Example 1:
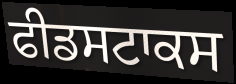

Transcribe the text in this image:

ਫੀਡਸਟਾਕਸ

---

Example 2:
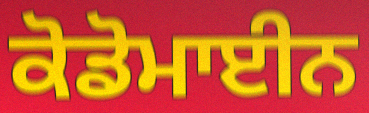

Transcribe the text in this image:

ਕੋਡੋਮਾਈਨ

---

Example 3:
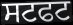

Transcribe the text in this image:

ਸਟਫਟ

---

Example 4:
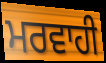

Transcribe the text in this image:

ਮਰਵਾਹੀ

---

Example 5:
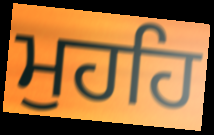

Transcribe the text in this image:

ਮੁਹਹਿ